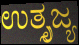
ಉತ್ಸೃಜ್ಯ